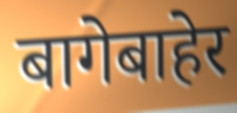
बागेबाहेर